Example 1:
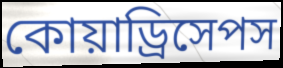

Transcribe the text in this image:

কোয়াড্রিসেপস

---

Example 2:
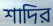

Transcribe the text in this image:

শাদির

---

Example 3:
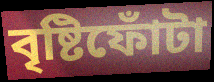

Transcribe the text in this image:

বৃষ্টিফোঁটা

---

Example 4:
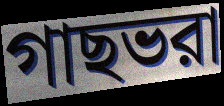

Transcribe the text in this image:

গাছভরা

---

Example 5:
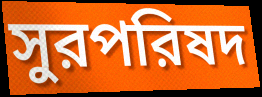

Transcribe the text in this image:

সুরপরিষদ